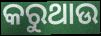
କରୁଥାଉ